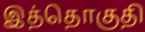
இத்தொகுதி